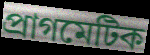
প্ৰাগমেটিক